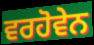
ਵਰਹੋਵੇਨ